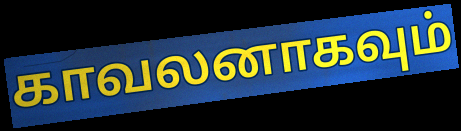
காவலனாகவும்